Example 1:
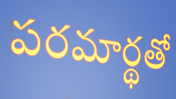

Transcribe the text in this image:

పరమార్థతో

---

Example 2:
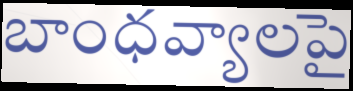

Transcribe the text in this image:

బాంధవ్యాలపై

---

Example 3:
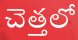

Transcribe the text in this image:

చెత్తలో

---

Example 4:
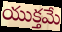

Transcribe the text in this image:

యుక్తమే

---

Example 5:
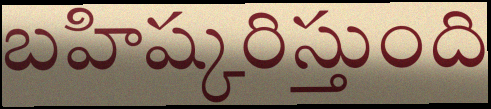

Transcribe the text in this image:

బహిష్కరిస్తుంది